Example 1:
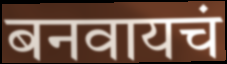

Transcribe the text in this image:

बनवायचं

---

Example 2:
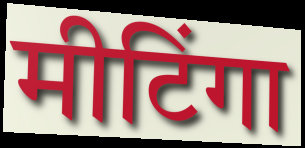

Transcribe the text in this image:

मीटिंगा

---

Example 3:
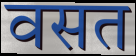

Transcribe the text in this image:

वसत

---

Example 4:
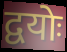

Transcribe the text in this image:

द्वयोः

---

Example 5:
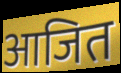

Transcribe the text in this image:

आजित